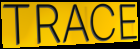
TRACE